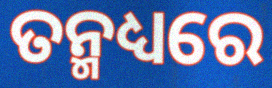
ତନ୍ମଧ୍ୟରେ